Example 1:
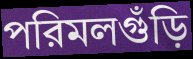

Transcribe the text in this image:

পরিমলগুঁড়ি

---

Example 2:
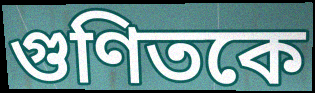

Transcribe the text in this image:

গুণিতকে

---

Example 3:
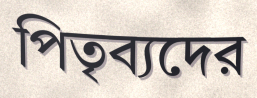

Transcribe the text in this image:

পিতৃব্যদের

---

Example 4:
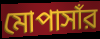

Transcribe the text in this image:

মোপাসাঁর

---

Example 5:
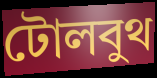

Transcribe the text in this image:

টোলবুথ